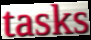
tasks